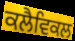
ਕਲੈਵਿਕਲ